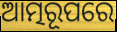
ଆତ୍ମରୂପରେ